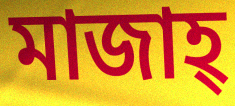
মাজাহ্